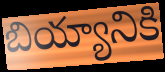
బియ్యానికి